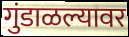
गुंडाळल्यावर